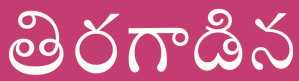
తిరగాడిన